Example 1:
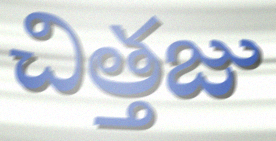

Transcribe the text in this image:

చిత్తజు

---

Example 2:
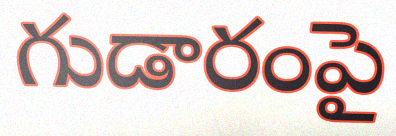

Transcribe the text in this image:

గుడారంపై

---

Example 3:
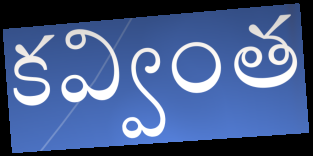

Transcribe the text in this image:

కవ్వింత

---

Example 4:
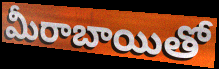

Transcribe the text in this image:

మీరాబాయితో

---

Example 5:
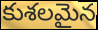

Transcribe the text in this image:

కుశలమైన